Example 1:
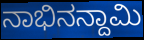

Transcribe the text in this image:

ನಾಭಿನನ್ದಾಮಿ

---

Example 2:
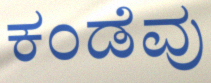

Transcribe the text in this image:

ಕಂಡೆವು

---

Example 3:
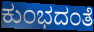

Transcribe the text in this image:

ಕುಂಭದಂತೆ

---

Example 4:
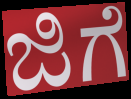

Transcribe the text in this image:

ಜಿಗೆ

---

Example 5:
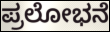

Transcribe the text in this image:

ಪ್ರಲೋಭನೆ